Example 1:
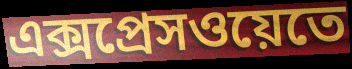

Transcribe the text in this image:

এক্সপ্রেসওয়েতে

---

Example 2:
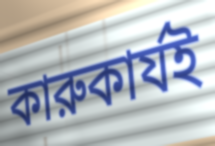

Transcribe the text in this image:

কারুকার্যই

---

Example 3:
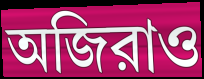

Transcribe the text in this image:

অজিরাও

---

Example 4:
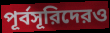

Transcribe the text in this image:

পূর্বসূরিদেরও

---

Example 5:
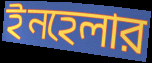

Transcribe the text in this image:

ইনহেলার